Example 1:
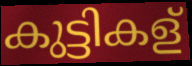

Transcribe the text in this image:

കുട്ടികള്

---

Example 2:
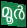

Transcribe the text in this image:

മൂർ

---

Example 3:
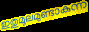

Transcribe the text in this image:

ഇതുമൂലമുണ്ടാകുന്ന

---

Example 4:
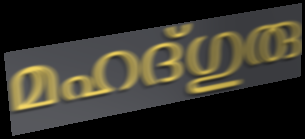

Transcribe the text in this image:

മഹദ്ഗുരു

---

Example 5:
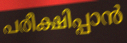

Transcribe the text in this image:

പരീക്ഷിപ്പാൻ